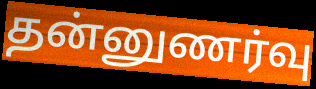
தன்னுணர்வு